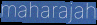
maharajah